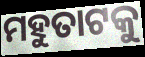
ମହୁତାଟକୁ